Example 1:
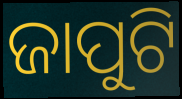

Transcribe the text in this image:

ଜାପୁଟି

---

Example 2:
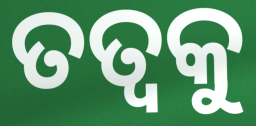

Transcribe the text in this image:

ତତ୍ୱକୁ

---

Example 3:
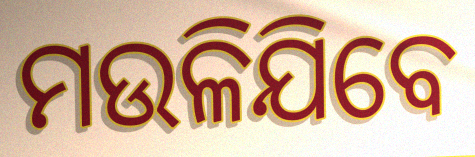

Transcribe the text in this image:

ମଉଳିଯିବେ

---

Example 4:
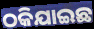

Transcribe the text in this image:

ଠକିଯାଇଛ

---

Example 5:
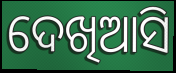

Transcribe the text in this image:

ଦେଖିଆସି